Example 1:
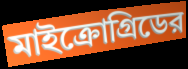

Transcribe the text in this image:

মাইক্রোগ্রিডের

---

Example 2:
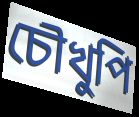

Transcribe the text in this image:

চৌখুপি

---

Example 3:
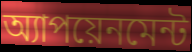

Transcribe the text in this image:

অ্যাপয়েনমেন্ট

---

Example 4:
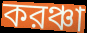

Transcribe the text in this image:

করঞ্চা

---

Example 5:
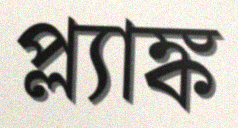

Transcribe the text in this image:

প্ল্যাঙ্ক